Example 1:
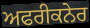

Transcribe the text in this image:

ਅਫਰੀਕਨੇਰ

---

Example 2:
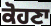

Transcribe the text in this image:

ਕੋਹਣਾ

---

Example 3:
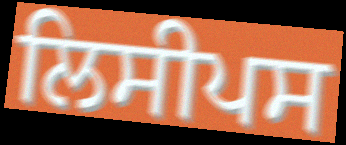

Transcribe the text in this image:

ਲਿਸੀਪਸ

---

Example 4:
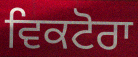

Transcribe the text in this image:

ਵਿਕਟੋਰਾ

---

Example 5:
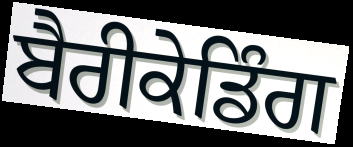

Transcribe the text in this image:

ਬੈਰੀਕੇਡਿੰਗ